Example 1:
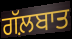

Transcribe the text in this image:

ਗੱਲ਼ਬਾਤ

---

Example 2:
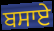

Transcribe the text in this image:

ਬਸਾਏ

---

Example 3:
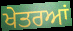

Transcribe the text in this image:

ਖੇਤਰਆਂ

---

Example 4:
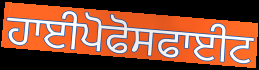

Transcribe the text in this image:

ਹਾਈਪੋਫੋਸਫਾਈਟ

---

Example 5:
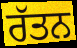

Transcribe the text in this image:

ਰੱਤਨ